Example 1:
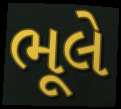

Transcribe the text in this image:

ભૂલે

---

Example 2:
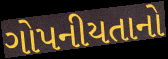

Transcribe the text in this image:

ગોપનીયતાનો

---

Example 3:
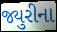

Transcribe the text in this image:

જ્યુરીના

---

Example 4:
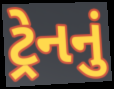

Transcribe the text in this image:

ટ્રેનનું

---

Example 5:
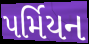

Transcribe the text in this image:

પર્મિયન